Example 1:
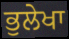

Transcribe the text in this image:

ਭੁਲੇਖਾ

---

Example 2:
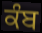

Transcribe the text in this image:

ਕੰਬ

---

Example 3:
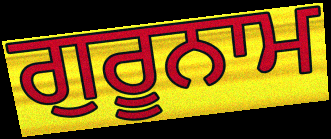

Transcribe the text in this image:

ਗੁਰੂਨਾਮ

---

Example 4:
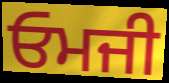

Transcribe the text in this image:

ਓਮਜੀ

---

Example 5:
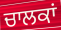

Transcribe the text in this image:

ਚਾਲਕਾਂ